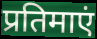
प्रतिमाएं